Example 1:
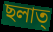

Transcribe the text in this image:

ছলাত্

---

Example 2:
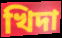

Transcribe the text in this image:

খিদা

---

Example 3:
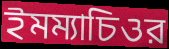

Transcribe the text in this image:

ইমম্যাচিওর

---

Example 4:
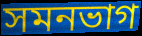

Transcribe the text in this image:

সমনভাগ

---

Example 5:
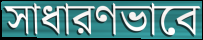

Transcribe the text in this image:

সাধারণভাবে